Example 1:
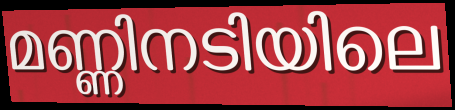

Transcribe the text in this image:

മണ്ണിനടിയിലെ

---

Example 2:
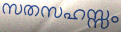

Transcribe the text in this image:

സതസഹസ്സം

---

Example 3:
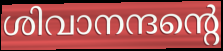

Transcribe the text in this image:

ശിവാനന്ദന്റെ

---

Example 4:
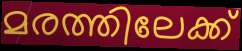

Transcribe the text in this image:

മരത്തിലേക്ക്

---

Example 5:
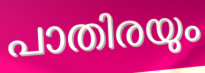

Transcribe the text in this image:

പാതിരയും